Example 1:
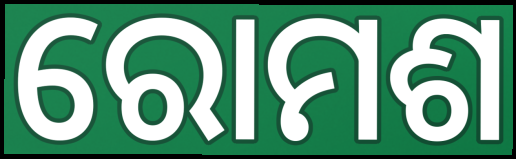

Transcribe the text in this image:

ରୋମଶ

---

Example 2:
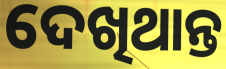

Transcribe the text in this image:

ଦେଖିଥାନ୍ତ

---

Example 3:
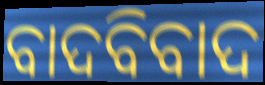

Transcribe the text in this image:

ବାଦବିବାଦ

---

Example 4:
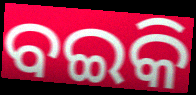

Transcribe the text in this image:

ବଇକି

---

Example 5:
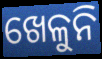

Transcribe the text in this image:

ଖେଳୁନି